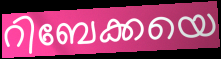
റിബേക്കയെ